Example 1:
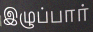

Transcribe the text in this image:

இழுப்பார்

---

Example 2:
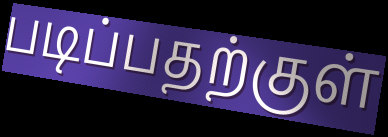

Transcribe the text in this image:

படிப்பதற்குள்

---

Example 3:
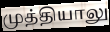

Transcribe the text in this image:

முத்தியாலு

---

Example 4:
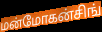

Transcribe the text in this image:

மன்மோகன்சிங்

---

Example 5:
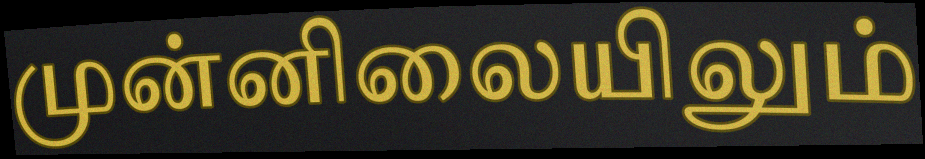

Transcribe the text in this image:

முன்னிலையிலும்